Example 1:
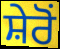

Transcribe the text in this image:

ਸ਼ੇਰੋਂ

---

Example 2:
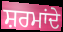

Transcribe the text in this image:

ਸ਼ਰਮਾਂਦੇ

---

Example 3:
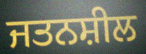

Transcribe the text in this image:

ਜਤਨਸ਼ੀਲ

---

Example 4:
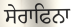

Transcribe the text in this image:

ਸੇਰਾਫਿਨਾ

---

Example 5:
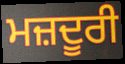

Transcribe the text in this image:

ਮਜ਼ਦੂਰੀ